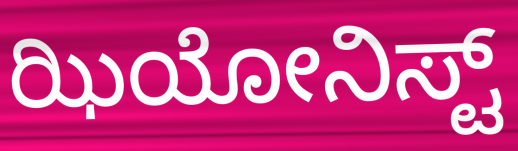
ಝಿಯೋನಿಸ್ಟ್